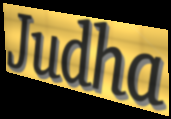
Judha